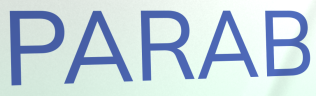
PARAB